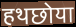
हथछोया